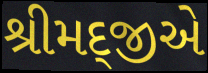
શ્રીમદ્જીએ